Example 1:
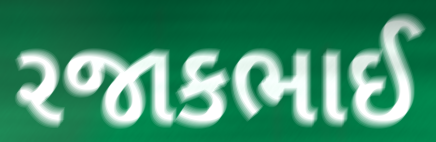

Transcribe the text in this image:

રજાકભાઈ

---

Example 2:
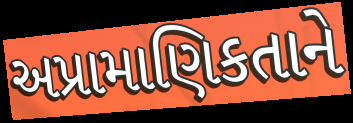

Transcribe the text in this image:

અપ્રામાણિકતાને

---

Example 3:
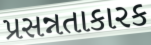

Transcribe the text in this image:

પ્રસન્નતાકારક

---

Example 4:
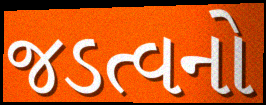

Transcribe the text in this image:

જડત્વનો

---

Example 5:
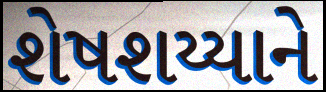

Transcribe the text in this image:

શેષશય્યાને